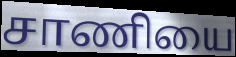
சாணியை